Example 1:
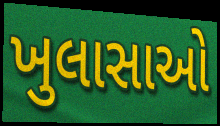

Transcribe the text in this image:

ખુલાસાઓ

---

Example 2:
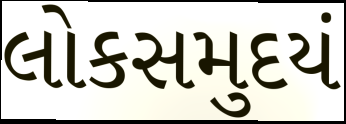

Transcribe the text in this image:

લોકસમુદયં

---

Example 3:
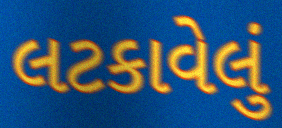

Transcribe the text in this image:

લટકાવેલું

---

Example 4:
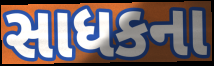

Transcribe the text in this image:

સાધકના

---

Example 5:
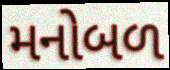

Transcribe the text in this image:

મનોબળ